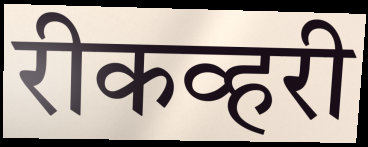
रीकव्हरी